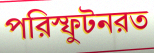
পরিস্ফুটনরত